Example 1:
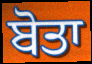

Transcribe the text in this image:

ਬੋਤਾ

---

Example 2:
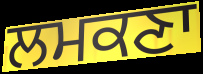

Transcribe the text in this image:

ਲਮਕਣਾ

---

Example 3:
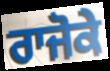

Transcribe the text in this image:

ਰਾਜੋਕੇ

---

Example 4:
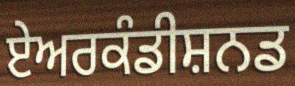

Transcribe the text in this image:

ਏਅਰਕੰਡੀਸ਼ਨਡ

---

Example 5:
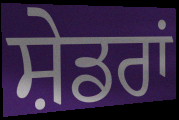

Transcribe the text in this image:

ਸ਼ੇਡਰਾਂ